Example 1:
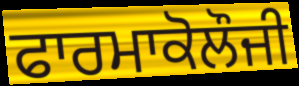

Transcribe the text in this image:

ਫਾਰਮਾਕੋਲੌਜੀ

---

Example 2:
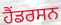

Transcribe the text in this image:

ਹੈਂਡਰਸਨ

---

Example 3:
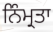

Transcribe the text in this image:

ਨਿੰਮ੍ਰਤਾ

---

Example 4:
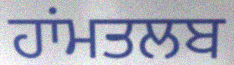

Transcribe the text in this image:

ਹਾਂਮਤਲਬ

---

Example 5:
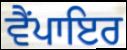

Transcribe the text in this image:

ਵੈਂਪਾਇਰ